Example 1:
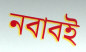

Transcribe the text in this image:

নবাবই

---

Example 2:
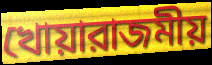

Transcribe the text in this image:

খোয়ারাজমীয়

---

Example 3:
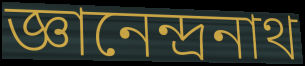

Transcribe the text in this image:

জ্ঞানেন্দ্রনাথ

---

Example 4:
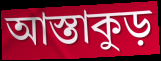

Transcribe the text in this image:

আস্তাকুড়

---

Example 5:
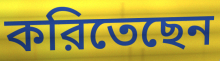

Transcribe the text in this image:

করিতেছেন